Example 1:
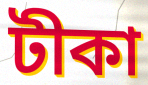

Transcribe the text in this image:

টীকা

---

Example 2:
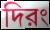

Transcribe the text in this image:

দিরং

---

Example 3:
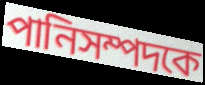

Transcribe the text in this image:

পানিসম্পদকে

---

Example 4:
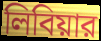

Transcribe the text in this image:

লিবিয়ার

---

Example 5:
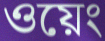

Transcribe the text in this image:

ওয়েং